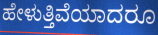
ಹೇಳುತ್ತಿವೆಯಾದರೂ